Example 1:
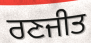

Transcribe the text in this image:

ਰਣਜੀਤ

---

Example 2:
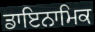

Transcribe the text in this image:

ਡਾਇਨਾਮਿਕ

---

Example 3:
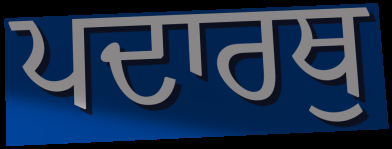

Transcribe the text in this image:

ਪਦਾਰਥੁ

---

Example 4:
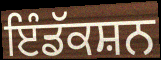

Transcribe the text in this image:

ਇੰਡੱਕਸ਼ਨ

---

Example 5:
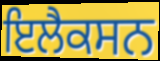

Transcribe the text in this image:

ਇਲੈਕਸਨ